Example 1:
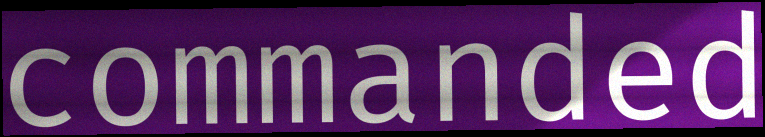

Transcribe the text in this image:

commanded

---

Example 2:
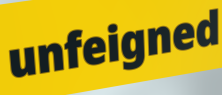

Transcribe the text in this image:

unfeigned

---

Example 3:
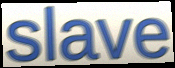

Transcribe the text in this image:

slave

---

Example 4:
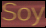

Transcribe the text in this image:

Soy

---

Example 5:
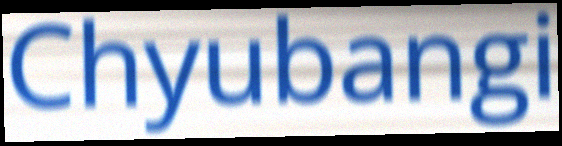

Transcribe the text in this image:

Chyubangi